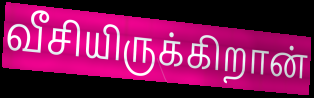
வீசியிருக்கிறான்